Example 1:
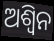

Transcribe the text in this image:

ଅଶ୍ଵିନ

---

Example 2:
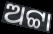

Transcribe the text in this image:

ଅଟ୍ଟା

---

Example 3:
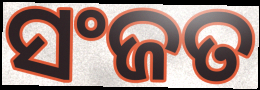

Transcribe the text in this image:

ସଂଜତ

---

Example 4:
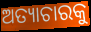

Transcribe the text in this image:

ଅତ୍ୟାଚାରକୁ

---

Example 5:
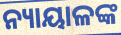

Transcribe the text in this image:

ନ୍ୟାୟାଳଙ୍କ